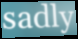
sadly